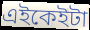
এইকেইটা